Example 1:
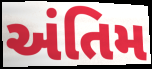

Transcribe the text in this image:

અંતિમ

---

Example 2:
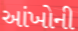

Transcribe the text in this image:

આંખોની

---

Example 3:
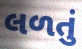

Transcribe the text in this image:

લળતું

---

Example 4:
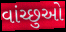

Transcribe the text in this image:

વાંચ્છુઓ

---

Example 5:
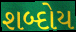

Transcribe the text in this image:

શબ્દોય